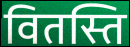
वितस्ति